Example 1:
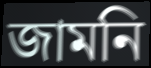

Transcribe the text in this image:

জামনি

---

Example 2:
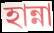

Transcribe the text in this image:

হান্না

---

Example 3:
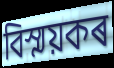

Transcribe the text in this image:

বিস্ময়কৰ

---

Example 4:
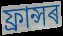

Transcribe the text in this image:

ফ্ৰান্সৰ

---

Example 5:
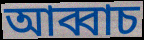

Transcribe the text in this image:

আব্বাচ